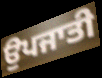
ਉਪਜਾਤੀ